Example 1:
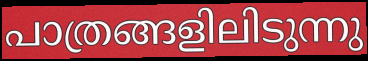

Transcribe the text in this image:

പാത്രങ്ങളിലിടുന്നു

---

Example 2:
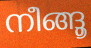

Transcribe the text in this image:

നീങ്ങൂ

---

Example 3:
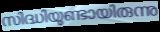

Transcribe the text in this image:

സിദ്ധിയുണ്ടായിരുന്നു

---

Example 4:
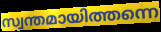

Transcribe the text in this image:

സ്വന്തമായിത്തന്നെ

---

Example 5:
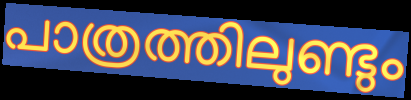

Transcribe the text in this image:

പാത്രത്തിലുണ്ടും